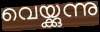
വെയ്ക്കുന്നു